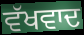
ਵੱਖਵਾਦ